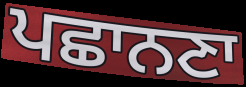
ਪਛਾਨਣਾ